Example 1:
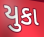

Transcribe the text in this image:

યુકા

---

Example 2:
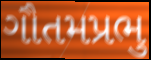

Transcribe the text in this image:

ગૌતમપ્રભુ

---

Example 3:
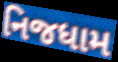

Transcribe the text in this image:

નિજધામ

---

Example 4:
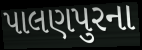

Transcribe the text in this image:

પાલણપુરના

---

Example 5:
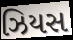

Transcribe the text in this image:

ઝિયસ